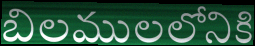
బిలములలోనికి